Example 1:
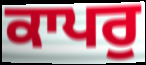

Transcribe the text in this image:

ਕਾਪਰੁ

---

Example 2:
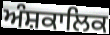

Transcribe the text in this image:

ਅੰਸ਼ਕਾਲਿਕ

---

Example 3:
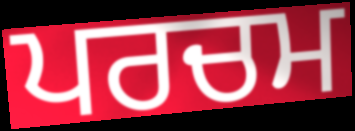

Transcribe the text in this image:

ਪਰਚਮ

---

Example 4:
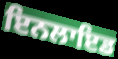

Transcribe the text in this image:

ਇਨਲਾਇਡ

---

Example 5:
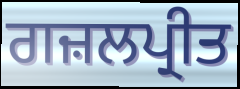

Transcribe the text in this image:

ਗਜ਼ਲਪ੍ਰੀਤ